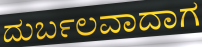
ದುರ್ಬಲವಾದಾಗ